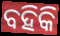
ବହିକି